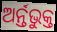
ଅର୍ନ୍ତଭୁକ୍ତ